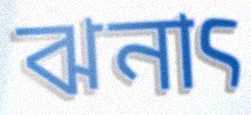
ঝনাৎ